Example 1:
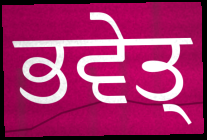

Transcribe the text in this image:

ਭਵੇਤ੍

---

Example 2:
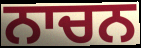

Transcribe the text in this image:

ਨਾਚਨ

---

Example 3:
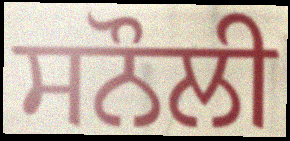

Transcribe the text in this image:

ਸਨੌਲੀ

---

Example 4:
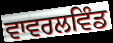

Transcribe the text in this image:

ਵਾਵਰਲਵਿੰਡ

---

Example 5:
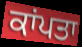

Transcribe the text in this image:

ਕਾਂਪਤਾ